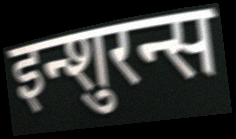
इन्शुरन्स